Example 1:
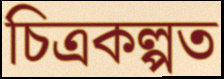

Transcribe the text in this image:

চিত্ৰকল্পত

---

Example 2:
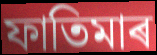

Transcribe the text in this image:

ফাতিমাৰ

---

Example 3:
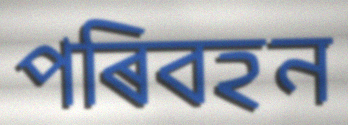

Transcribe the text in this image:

পৰিবহন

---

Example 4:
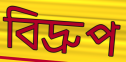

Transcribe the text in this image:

বিদ্ৰুপ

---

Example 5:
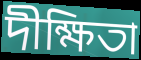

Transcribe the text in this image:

দীক্ষিতা